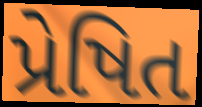
પ્રેષિત